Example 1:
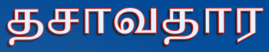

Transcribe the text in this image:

தசாவதார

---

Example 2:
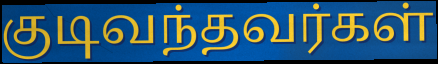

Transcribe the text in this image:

குடிவந்தவர்கள்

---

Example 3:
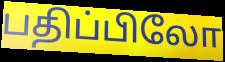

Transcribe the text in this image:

பதிப்பிலோ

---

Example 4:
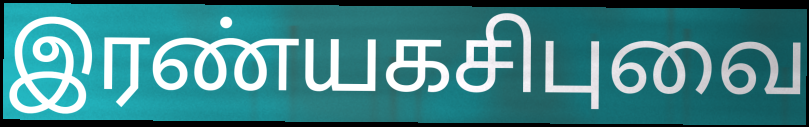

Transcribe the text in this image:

இரண்யகசிபுவை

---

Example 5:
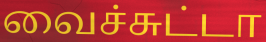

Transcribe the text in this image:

வைச்சுட்டா